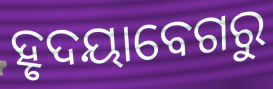
ହୃଦୟାବେଗରୁ